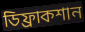
ডিফ্রাকশান